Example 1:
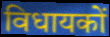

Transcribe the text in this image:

विधायकों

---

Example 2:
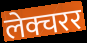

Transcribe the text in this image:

लेक्चरर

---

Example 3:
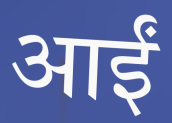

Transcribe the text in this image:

आईं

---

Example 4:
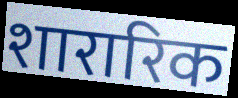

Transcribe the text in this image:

शारारिक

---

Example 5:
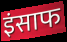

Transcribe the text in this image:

इंसाफ